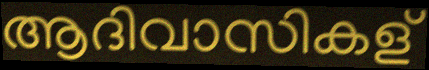
ആദിവാസികള്